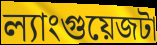
ল্যাংগুয়েজটা